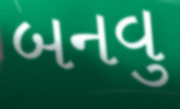
બનવુ